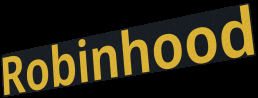
Robinhood